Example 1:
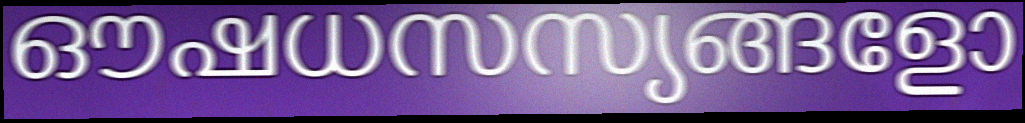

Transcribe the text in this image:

ഔഷധസസ്യങ്ങളോ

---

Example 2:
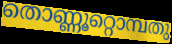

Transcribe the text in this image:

തൊണ്ണൂറ്റൊമ്പതു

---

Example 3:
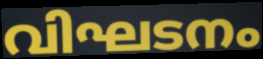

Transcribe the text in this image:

വിഘടനം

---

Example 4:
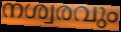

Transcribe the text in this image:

നശ്വരവും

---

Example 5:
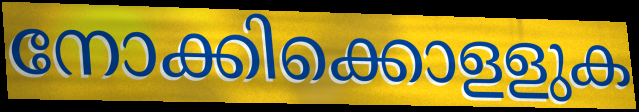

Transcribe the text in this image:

നോക്കിക്കൊളളുക